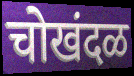
चोखंदळ